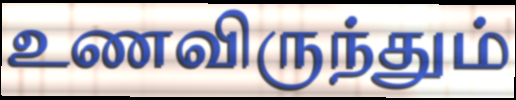
உணவிருந்தும்